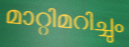
മാറ്റിമറിച്ചും